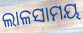
ଲାଳସାମୟ